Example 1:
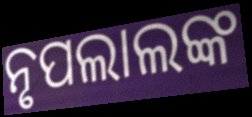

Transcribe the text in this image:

ନୃପଲାଲଙ୍କ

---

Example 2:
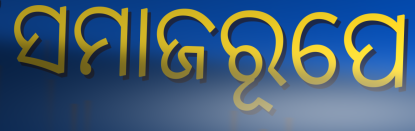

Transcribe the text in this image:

ସମାଜରୂପେ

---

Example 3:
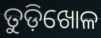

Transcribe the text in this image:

ତୁଡ଼ିଖୋଳ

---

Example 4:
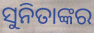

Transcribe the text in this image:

ସୁନିତାଙ୍କର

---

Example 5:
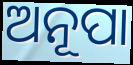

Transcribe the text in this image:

ଅନୂପା